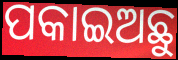
ପକାଇଅଛୁ